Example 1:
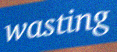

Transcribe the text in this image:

wasting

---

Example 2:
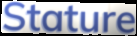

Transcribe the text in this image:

Stature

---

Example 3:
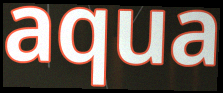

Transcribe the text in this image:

aqua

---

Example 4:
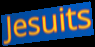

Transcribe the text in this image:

Jesuits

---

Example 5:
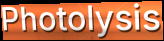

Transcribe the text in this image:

Photolysis